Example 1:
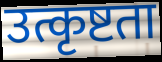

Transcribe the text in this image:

उत्कृष्टता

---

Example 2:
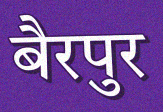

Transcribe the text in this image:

बैरपुर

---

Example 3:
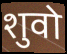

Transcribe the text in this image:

शुवो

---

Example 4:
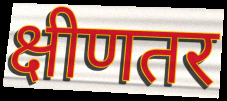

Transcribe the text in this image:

क्षीणतर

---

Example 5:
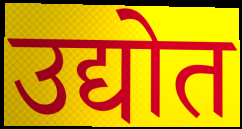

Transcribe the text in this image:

उद्योत